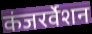
कंजरर्वेशन